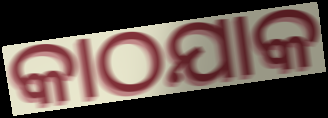
କାଠଯାକ